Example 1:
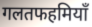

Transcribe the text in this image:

गलतफहमियाँ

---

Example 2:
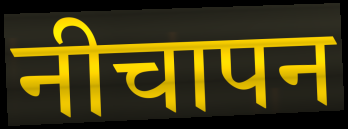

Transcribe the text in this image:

नीचापन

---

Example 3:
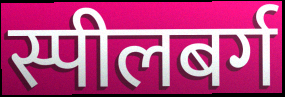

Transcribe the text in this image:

स्पीलबर्ग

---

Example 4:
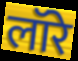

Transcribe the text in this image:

लॉरे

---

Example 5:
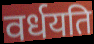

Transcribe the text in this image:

वर्धयति